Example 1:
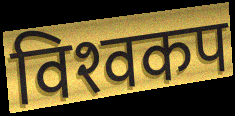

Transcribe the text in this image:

विश्वकप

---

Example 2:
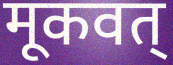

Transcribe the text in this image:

मूकवत्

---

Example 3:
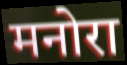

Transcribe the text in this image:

मनोरा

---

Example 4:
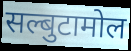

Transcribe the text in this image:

सल्बुटामोल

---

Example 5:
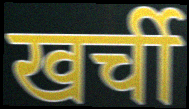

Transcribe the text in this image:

खर्ची